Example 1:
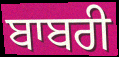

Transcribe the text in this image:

ਬਾਬਰੀ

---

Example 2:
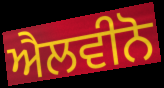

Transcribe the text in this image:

ਐਲਵੀਨੋ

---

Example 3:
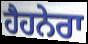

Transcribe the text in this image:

ਹੈਹਨੇਰਾ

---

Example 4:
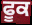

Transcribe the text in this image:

ਫੂਕ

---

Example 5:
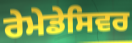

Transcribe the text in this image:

ਰੇਮੇਡੇਸਿਵਰ